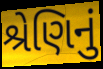
શ્રેણિનું